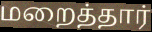
மறைத்தார்